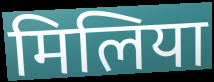
मिलिया